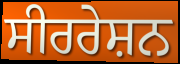
ਸੀਰਰੇਸ਼ਨ